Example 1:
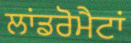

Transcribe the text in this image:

ਲਾਂਡਰੋਮੈਟਾਂ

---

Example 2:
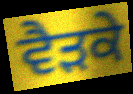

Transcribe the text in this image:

ਵੈੜਕੇ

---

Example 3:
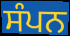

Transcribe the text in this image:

ਸੰਪਨ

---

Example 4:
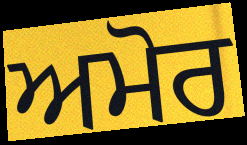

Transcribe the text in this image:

ਅਮੋਰ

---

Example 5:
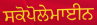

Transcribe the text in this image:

ਸਕੋਪੋਲੇਮਾਈਨ